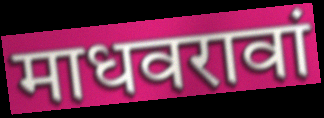
माधवरावां